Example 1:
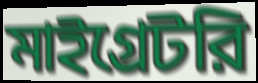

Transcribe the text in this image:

মাইগ্রেটরি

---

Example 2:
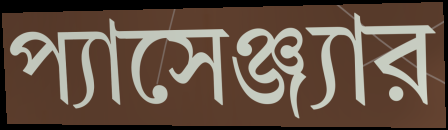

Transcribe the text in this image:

প্যাসেঞ্জ্যার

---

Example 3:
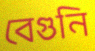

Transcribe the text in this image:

বেগুনি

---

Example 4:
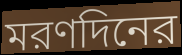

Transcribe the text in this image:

মরণদিনের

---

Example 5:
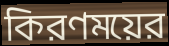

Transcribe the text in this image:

কিরণময়ের